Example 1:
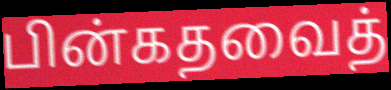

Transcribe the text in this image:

பின்கதவைத்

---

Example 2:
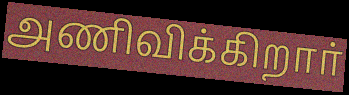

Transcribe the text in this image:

அணிவிக்கிறார்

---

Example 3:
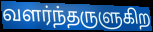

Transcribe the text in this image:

வளர்ந்தருளுகிற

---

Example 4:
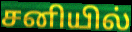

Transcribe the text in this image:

சனியில்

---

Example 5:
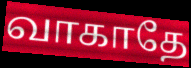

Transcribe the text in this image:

வாகாதே